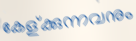
കേള്ക്കുന്നവനും